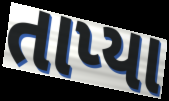
તાપ્યા